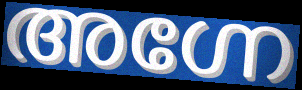
അഗ്നേ